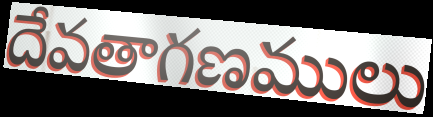
దేవతాగణములు